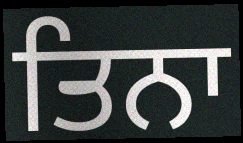
ਤਿਨਾ